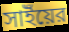
সাইঁয়ের